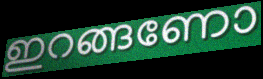
ഇറങ്ങണോ